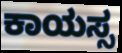
ಕಾಯಸ್ಸ